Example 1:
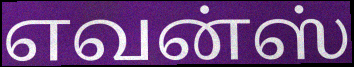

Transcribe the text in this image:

எவன்ஸ்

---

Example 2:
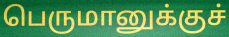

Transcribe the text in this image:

பெருமானுக்குச்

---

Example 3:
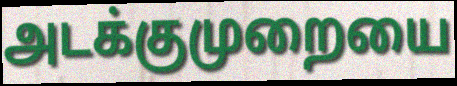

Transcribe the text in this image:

அடக்குமுறையை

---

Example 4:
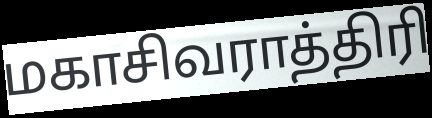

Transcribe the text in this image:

மகாசிவராத்திரி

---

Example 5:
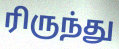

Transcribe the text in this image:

ரிருந்து